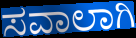
ಸವಾಲಾಗಿ